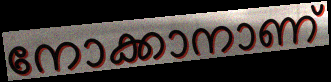
നോക്കാനാണ്